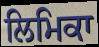
ਲਿਮਿਕਾ